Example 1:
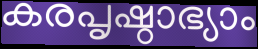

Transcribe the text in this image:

കരപൃഷ്ഠാഭ്യാം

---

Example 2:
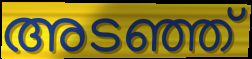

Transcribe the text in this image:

അടഞ്ഞ്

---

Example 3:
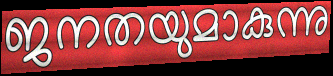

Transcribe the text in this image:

ജനതയുമാകുന്നു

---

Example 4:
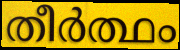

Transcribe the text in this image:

തീർത്ഥം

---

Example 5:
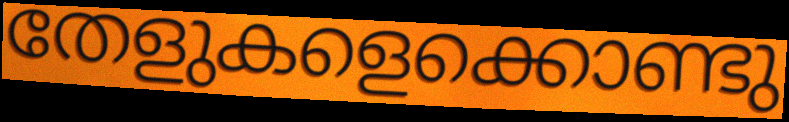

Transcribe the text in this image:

തേളുകളെക്കൊണ്ടു